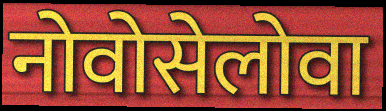
नोवोसेलोवा